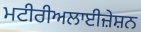
ਮਟੀਰੀਅਲਾਈਜ਼ੇਸ਼ਨ